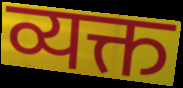
व्यक्त